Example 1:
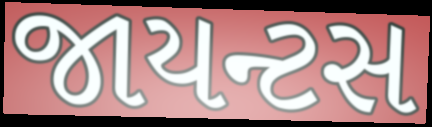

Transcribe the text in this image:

જાયન્ટસ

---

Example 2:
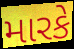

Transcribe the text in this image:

મારકે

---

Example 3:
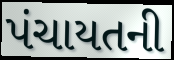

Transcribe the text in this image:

પંચાયતની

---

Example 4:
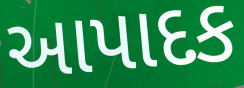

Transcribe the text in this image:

આપાદક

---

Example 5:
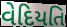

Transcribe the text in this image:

વેદિયતિ